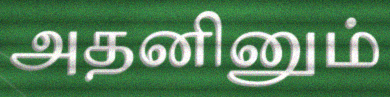
அதனினும்